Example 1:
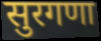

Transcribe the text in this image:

सुरगणा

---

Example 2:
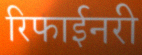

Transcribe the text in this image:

रिफाईनरी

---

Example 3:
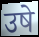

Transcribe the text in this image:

उषे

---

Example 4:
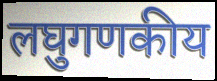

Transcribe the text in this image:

लघुगणकीय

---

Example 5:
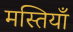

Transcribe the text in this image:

मस्तियाँ